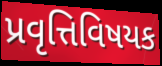
પ્રવૃત્તિવિષયક